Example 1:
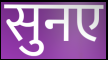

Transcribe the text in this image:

सुनए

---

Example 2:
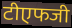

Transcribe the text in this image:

टीएफजी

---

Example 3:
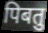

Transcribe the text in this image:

पिबतु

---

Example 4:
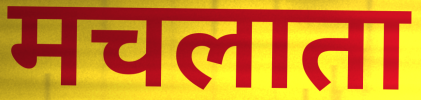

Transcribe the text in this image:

मचलाता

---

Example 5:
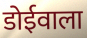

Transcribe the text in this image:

डोईवाला